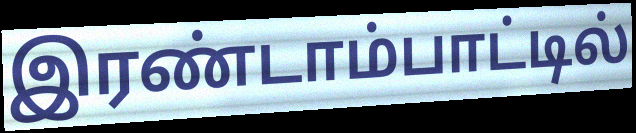
இரண்டாம்பாட்டில்